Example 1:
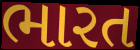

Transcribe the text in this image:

ભારત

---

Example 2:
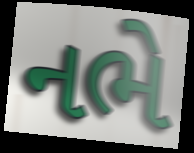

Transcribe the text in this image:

નભે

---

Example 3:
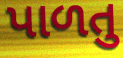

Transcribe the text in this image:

પાળતુ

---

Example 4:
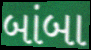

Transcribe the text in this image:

બાંબા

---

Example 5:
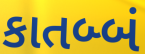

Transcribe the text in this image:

કાતબ્બં